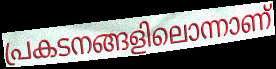
പ്രകടനങ്ങളിലൊന്നാണ്